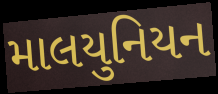
માલયુનિયન